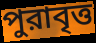
পুরাবৃত্ত